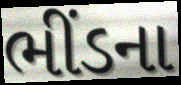
ભીંડના